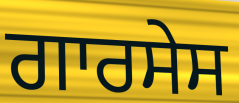
ਗਾਰਸੇਸ